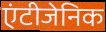
एंटीजेनिक